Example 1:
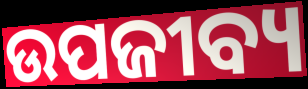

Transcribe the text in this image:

ଉପଜୀବ୍ୟ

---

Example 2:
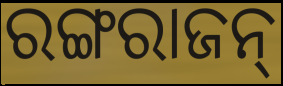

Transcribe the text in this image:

ରଙ୍ଗରାଜନ୍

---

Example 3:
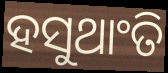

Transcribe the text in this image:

ହସୁଥାଂତି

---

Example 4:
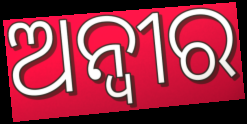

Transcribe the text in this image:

ଅନ୍ୱୀର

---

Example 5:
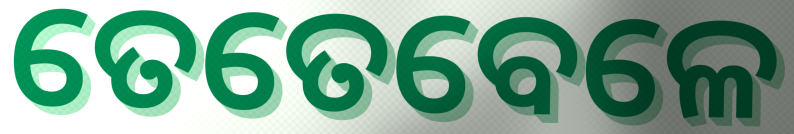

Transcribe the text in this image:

ତେତେବେଳେ